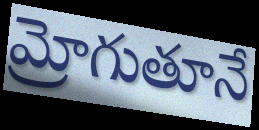
మ్రోగుతూనే